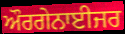
ਔਰਗੇਨਾਈਜਰ